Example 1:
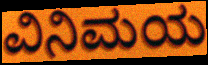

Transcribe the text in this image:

ವಿನಿಮಯ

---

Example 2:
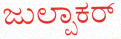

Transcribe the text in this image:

ಜುಲ್ಪಾಕರ್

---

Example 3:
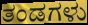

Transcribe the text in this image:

ತಂಡಗಳು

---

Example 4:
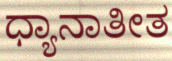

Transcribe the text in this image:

ಧ್ಯಾನಾತೀತ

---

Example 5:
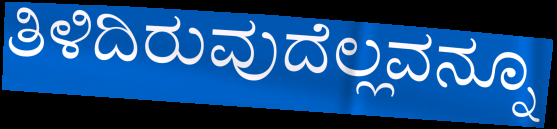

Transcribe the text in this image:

ತಿಳಿದಿರುವುದೆಲ್ಲವನ್ನೂ